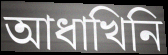
আধাখিনি